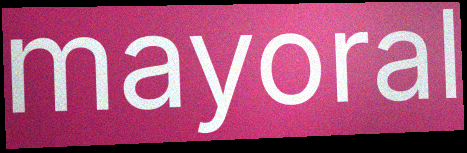
mayoral